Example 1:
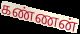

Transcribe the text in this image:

கண்ணன்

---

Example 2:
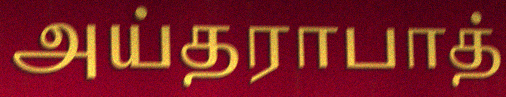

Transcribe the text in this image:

அய்தராபாத்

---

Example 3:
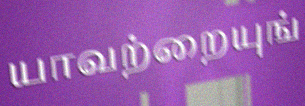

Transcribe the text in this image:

யாவற்றையுங்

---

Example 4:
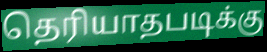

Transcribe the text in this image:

தெரியாதபடிக்கு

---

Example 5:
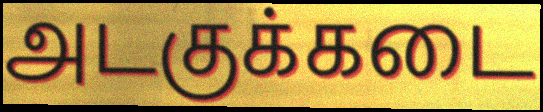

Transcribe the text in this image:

அடகுக்கடை